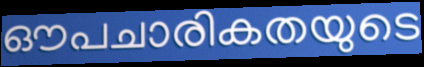
ഔപചാരികതയുടെ